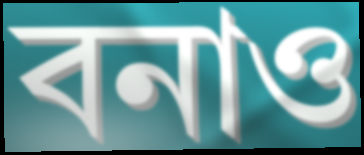
বনাও